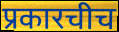
प्रकारचीच